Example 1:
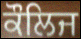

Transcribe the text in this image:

ਕੌਲਿਜ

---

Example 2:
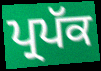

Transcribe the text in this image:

ਪ੍ਰਪੱਕ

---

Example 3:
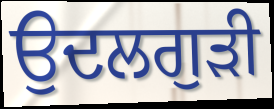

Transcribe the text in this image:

ਉਦਲਗੁੜੀ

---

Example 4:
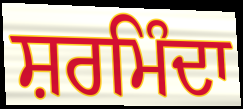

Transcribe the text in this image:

ਸ਼ਰਮਿੰਦਾ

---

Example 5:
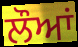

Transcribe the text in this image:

ਲੌਆਂ